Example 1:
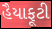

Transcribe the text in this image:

હૈયાફૂટી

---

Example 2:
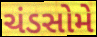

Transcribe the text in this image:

ચંડસોમે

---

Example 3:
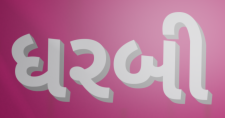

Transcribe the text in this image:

ધરબી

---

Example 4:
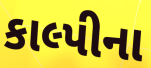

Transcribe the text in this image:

કાલ્પીના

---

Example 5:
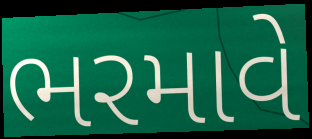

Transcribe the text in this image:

ભરમાવે